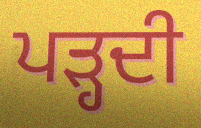
ਪਡ਼੍ਹਦੀ